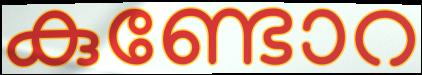
കുണ്ടോറ